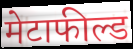
मेटाफील्ड